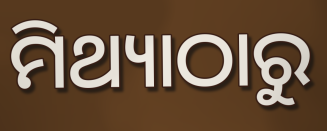
ମିଥ୍ୟାଠାରୁ